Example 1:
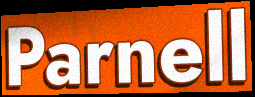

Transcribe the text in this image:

Parnell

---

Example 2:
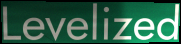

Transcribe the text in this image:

Levelized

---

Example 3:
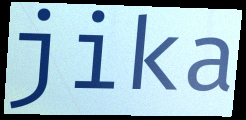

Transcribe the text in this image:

jika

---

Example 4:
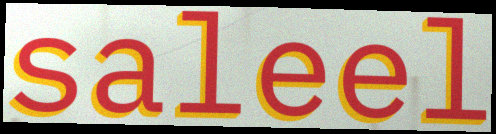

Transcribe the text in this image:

saleel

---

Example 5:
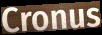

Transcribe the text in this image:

Cronus